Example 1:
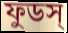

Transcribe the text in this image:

ফুডস্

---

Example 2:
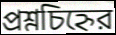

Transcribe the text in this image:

প্রশ্নচিহ্নের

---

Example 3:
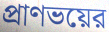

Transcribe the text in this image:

প্রাণভয়ের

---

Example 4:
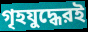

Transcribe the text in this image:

গৃহযুদ্ধেরই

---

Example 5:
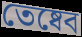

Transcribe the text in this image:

তেষ্বেব